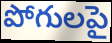
పోగులపై